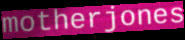
motherjones